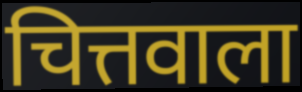
चित्तवाला